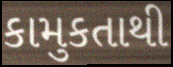
કામુકતાથી